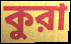
কুরা